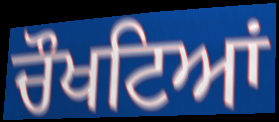
ਚੌਖਟਿਆਂ